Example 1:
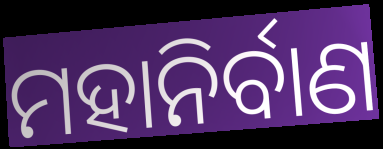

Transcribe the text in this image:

ମହାନିର୍ବାଣ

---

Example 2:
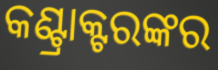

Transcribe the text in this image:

କଣ୍ଟ୍ରାକ୍ଟରଙ୍କର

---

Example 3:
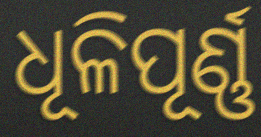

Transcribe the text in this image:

ଧୂଳିପୂର୍ଣ୍ଣ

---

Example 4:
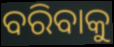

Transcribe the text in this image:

ବରିବାକୁ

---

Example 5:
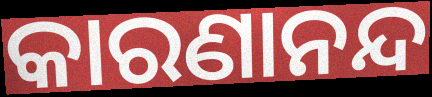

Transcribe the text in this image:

କାରଣାନନ୍ଦ